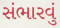
સંભારવું